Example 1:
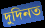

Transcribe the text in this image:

দুদিনত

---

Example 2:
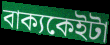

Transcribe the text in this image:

বাক্যকেইটা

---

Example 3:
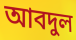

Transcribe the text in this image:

আবদুল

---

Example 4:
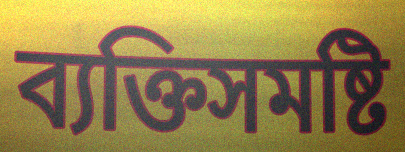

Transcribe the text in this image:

ব্যক্তিসমষ্টি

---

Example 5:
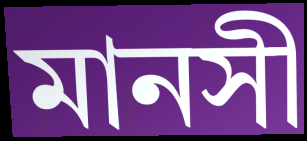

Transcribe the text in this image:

মানসী